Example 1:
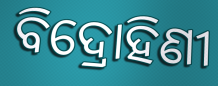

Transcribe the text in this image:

ବିଦ୍ରୋହିଣୀ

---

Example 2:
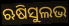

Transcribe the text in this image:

ଋଷିସୁଲଭ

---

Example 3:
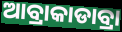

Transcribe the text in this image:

ଆବ୍ରାକାଡାବ୍ରା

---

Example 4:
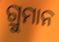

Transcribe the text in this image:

ଗ୍ରୁମାନ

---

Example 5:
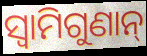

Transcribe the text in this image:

ସ୍ୱାମିଗୁଣାନ୍